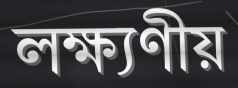
লক্ষ্যণীয়